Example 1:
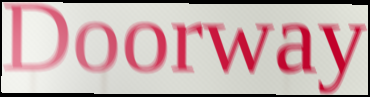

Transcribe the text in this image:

Doorway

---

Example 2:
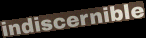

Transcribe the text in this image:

indiscernible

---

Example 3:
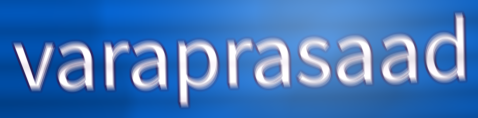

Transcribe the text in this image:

varaprasaad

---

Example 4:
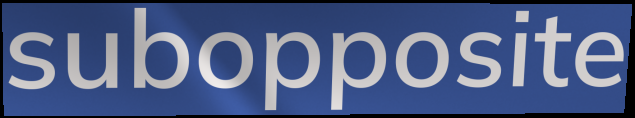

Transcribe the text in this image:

subopposite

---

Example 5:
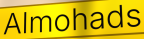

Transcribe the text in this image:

Almohads